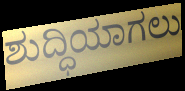
ಶುದ್ಧಿಯಾಗಲು